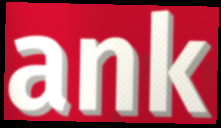
ank